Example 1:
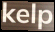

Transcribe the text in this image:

kelp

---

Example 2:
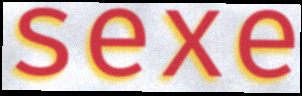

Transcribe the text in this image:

sexe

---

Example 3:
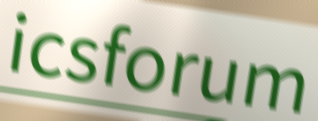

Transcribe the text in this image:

icsforum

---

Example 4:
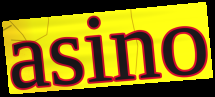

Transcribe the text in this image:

asino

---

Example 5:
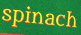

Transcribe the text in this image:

spinach